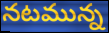
నటమున్న